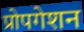
प्रोपगेशन